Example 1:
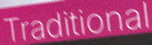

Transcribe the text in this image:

Traditional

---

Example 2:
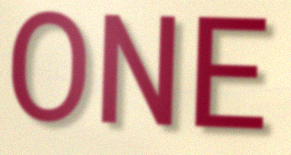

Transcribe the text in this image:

ONE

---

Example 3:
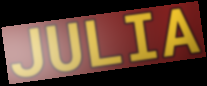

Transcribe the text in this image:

JULIA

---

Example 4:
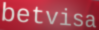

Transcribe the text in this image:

betvisa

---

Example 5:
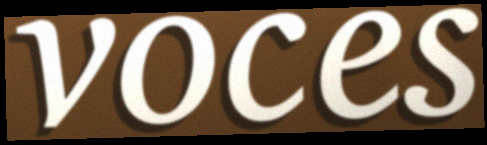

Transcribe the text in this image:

voces